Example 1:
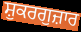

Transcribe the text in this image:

ਸ਼ੁਕਰਗੁਜ਼ਾਰ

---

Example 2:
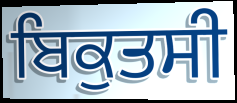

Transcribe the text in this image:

ਬਿਕੁਤਸੀ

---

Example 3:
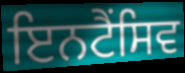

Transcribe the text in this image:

ਇਨਟੈਂਸਿਵ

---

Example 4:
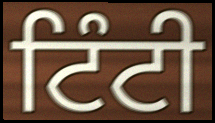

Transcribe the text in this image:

ਟਿੰਟੀ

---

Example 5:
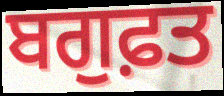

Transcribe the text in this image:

ਬਗੁਫ਼ਤ